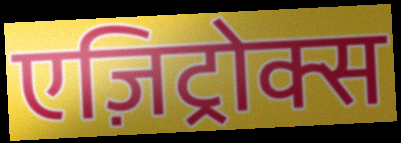
एज़िट्रोक्स